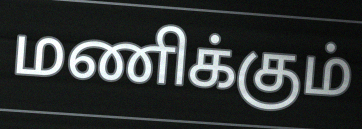
மணிக்கும்